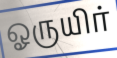
ஓருயிர்